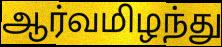
ஆர்வமிழந்து